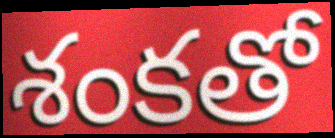
శంకతో